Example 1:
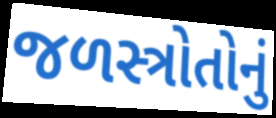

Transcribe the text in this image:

જળસ્ત્રોતોનું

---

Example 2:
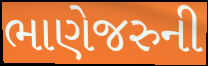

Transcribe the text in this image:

ભાણેજરુની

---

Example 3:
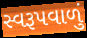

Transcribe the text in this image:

સ્વરૂપવાળું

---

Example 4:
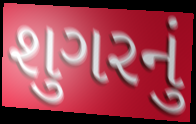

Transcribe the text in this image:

શુગરનું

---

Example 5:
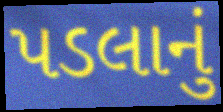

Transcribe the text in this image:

પડલાનું